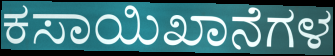
ಕಸಾಯಿಖಾನೆಗಳ